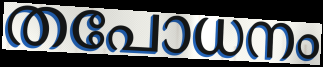
തപോധനം